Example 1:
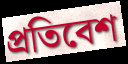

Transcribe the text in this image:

প্রতিবেশ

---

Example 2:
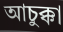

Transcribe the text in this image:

আচুক্কা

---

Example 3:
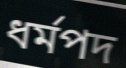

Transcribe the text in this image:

ধর্মপদ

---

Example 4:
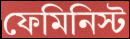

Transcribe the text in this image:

ফেমিনিস্ট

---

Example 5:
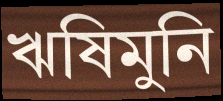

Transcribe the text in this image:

ঋষিমুনি